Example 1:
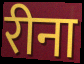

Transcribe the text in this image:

रीना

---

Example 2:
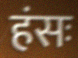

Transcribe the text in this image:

हंसः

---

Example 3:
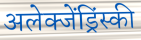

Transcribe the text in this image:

अलेक्जेंड्रिंस्की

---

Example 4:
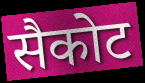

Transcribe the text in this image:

सैकोट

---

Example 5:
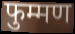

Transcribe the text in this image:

फुम्मण